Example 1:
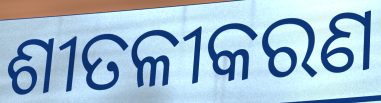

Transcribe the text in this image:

ଶୀତଳୀକରଣ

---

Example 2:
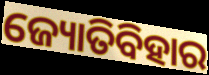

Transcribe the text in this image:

ଜ୍ୟୋତିବିହାର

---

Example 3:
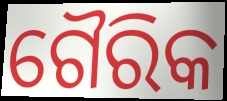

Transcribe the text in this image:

ଗୈରିକ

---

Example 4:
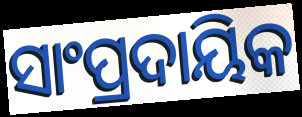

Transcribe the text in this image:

ସାଂପ୍ରଦାୟିକ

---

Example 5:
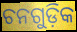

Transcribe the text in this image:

ଚନଗୁଡ଼ିକ